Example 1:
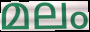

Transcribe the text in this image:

മലം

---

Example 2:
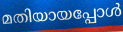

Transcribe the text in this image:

മതിയായപ്പോൾ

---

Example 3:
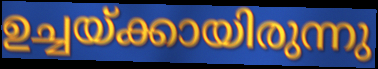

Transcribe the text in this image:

ഉച്ചയ്ക്കായിരുന്നു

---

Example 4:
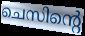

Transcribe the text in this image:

ചെസിന്റെ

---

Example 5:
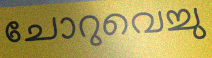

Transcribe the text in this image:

ചോറുവെച്ചു